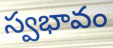
స్వభావం